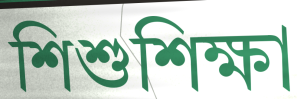
শিশুশিক্ষা